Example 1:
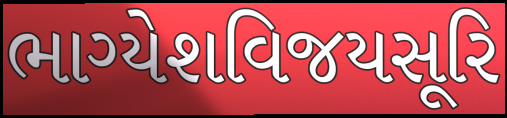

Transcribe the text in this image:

ભાગ્યેશવિજયસૂરિ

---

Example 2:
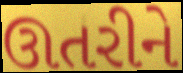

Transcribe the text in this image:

ઊતરીને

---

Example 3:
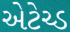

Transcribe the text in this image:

એટેચ્ડ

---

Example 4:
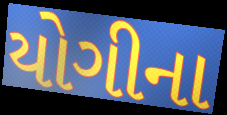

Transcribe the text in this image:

યોગીના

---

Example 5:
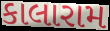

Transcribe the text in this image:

કાલારામ